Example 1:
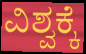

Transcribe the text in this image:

ವಿಶ್ವಕ್ಕೆ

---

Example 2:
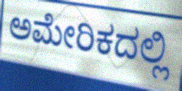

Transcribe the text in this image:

ಅಮೇರಿಕದಲ್ಲಿ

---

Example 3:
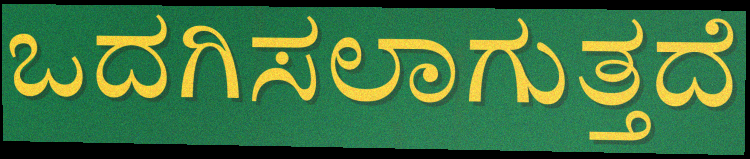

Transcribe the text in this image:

ಒದಗಿಸಲಾಗುತ್ತದೆ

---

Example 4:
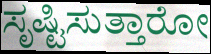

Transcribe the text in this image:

ಸೃಷ್ಟಿಸುತ್ತಾರೋ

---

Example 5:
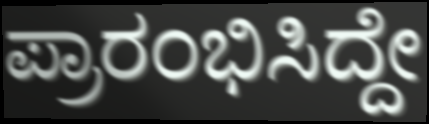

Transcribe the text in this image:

ಪ್ರಾರಂಭಿಸಿದ್ದೇ